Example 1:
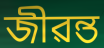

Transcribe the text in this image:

জীৱন্ত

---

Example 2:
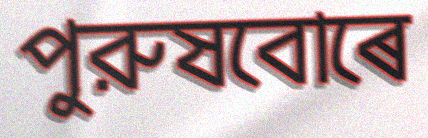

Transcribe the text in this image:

পুৰুষবোৰে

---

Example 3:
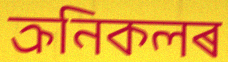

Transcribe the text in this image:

ক্ৰনিকলৰ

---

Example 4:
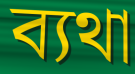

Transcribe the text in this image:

ব্যথা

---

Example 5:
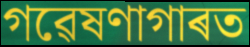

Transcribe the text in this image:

গৱেষণাগাৰত